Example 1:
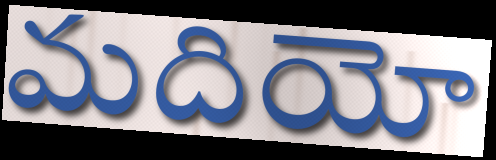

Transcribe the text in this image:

మదియో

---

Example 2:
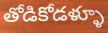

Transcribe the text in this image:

తోడికోడళ్ళూ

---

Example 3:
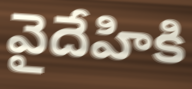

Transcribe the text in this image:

వైదేహికి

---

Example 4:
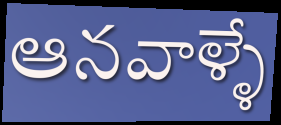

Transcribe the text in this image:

ఆనవాళ్ళే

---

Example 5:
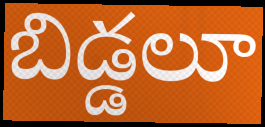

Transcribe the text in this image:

బిడ్డలూ